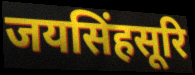
जयसिंहसूरि